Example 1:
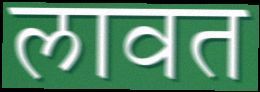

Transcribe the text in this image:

लावत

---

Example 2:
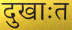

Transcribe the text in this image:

दुखाःत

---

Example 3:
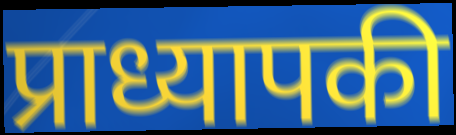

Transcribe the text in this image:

प्राध्यापकी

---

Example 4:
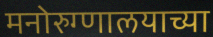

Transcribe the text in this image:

मनोरुग्णालयाच्या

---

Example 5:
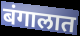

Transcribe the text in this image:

बंगालात